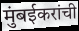
मुंबईकरांची